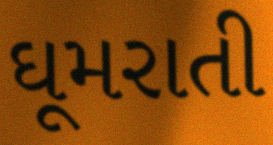
ઘૂમરાતી